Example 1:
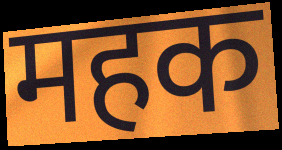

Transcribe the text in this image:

महक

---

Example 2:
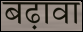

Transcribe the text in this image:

बढ़ावा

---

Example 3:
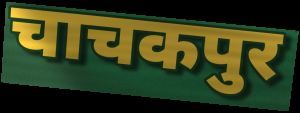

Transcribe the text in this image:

चाचकपुर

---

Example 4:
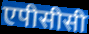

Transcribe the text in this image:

एपीसीसी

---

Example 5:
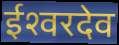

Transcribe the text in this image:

ईश्वरदेव